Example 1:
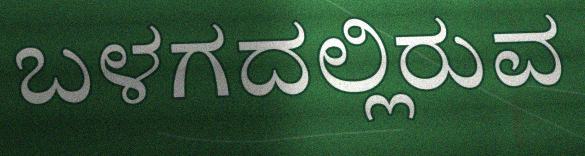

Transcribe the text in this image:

ಬಳಗದಲ್ಲಿರುವ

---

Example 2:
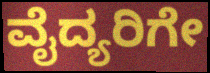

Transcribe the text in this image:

ವೈದ್ಯರಿಗೇ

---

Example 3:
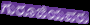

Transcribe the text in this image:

ಗುರೂಜಿಯವರು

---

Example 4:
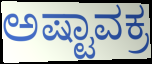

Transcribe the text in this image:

ಅಷ್ಟಾವಕ್ರ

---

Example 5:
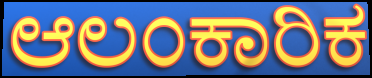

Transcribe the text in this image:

ಆಲಂಕಾರಿಕ